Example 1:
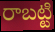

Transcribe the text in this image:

రాబట్టి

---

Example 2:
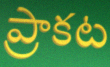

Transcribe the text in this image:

ప్రాకట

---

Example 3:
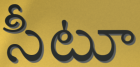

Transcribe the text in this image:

సీటూ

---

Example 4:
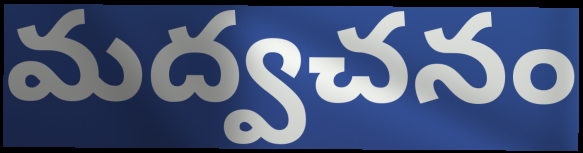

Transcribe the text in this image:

మద్వచనం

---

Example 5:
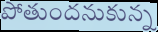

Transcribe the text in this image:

పోతుందనుకున్న